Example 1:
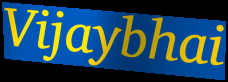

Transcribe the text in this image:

Vijaybhai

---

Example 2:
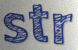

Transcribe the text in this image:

str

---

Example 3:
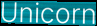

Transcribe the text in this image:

Unicorn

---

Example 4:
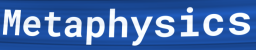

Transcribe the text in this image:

Metaphysics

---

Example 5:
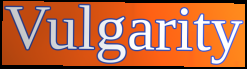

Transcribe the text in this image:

Vulgarity